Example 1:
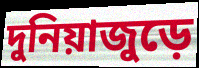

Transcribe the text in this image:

দুনিয়াজুড়ে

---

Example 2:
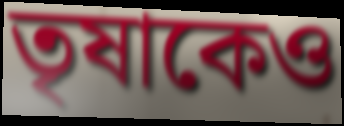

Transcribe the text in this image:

তৃষাকেও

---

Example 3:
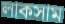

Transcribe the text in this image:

লাকসাম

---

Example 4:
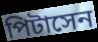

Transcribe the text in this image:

পিটাসেন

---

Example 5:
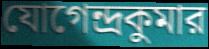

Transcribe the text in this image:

যোগেন্দ্রকুমার